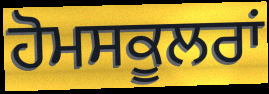
ਹੋਮਸਕੂਲਰਾਂ